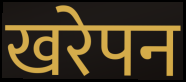
खरेपन